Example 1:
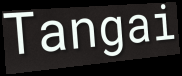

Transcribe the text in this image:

Tangai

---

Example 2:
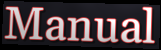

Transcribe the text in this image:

Manual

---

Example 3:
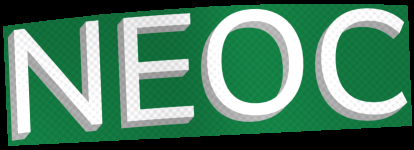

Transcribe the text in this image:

NEOC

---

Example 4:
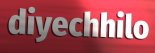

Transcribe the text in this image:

diyechhilo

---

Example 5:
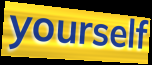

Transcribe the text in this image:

yourself